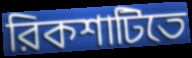
রিকশাটিতে